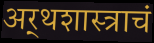
अर्थशास्त्राचं